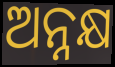
ଅନ୍ନକ୍ଷ